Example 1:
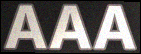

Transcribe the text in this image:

AAA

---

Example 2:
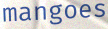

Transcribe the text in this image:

mangoes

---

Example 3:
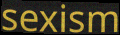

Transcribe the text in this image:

sexism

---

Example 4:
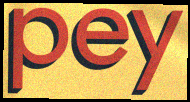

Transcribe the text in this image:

pey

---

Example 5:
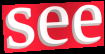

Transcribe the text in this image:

see